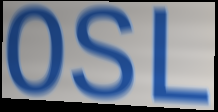
OSL